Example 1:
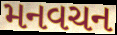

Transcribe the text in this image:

મનવચન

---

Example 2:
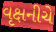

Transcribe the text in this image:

વૃક્ષનીચે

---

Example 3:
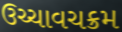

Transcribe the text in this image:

ઉચ્ચાવચક્રમ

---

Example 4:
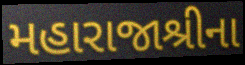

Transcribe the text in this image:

મહારાજાશ્રીના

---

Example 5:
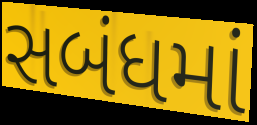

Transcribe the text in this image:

સબંધમાં